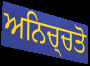
ਅਨਿਚ੍ਚਤੋ